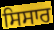
ਸਿਸਾਰ